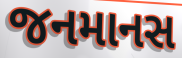
જનમાનસ